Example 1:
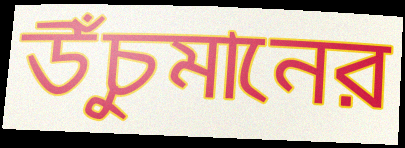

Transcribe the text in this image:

উঁচুমানের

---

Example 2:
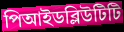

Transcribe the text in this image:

পিআইডব্লিউটিটি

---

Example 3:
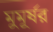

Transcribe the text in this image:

মুমূর্ষর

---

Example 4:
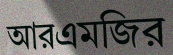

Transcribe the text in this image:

আরএমজির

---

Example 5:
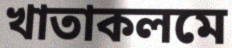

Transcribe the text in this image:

খাতাকলমে